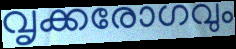
വൃക്കരോഗവും